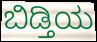
ಬಿಡ್ತಿಯ